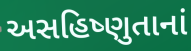
અસહિષ્ણુતાનાં